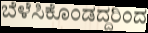
ಬೆಳೆಸಿಕೊಂಡದ್ದರಿಂದ